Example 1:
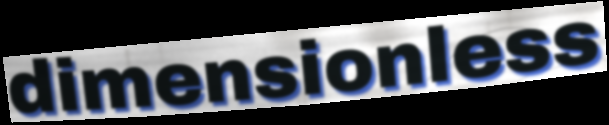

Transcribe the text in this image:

dimensionless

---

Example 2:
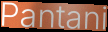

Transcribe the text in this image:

Pantani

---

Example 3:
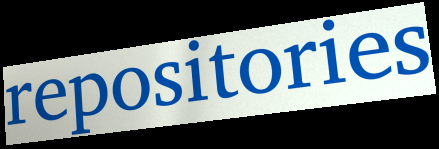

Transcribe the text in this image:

repositories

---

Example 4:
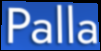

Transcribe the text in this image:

Palla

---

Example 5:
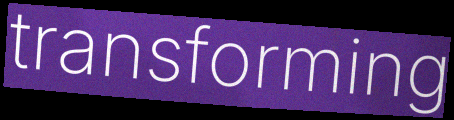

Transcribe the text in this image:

transforming